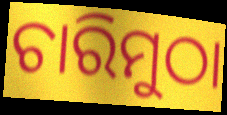
ଚାରିମୁଠା